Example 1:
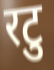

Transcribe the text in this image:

रटु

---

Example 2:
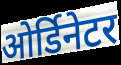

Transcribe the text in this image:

ओर्डिनेटर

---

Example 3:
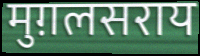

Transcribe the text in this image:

मुग़लसराय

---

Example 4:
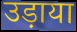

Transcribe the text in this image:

उड़ाया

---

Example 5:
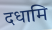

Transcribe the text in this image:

दधामि